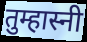
तुम्हास्नी